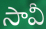
సావీ